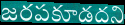
జరపకూడదని